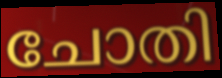
ചോതി